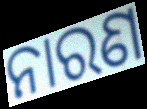
ନାରଣ